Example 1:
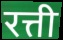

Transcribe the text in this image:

रत्ती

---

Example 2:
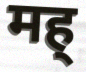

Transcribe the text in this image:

मह्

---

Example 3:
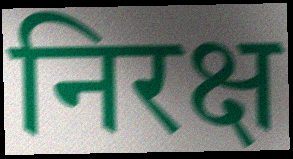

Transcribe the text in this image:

निरक्ष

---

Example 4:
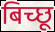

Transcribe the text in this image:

बिच्छू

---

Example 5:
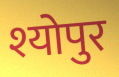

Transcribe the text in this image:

श्योपुर